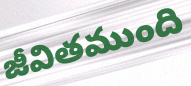
జీవితముంది